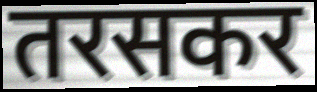
तरसकर